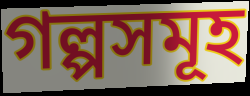
গল্পসমূহ